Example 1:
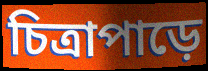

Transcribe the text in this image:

চিত্রাপাড়ে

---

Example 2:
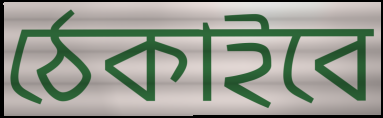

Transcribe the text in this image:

ঠেকাইবে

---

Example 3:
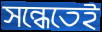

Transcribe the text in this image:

সন্ধেতেই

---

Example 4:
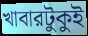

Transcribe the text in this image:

খাবারটুকুই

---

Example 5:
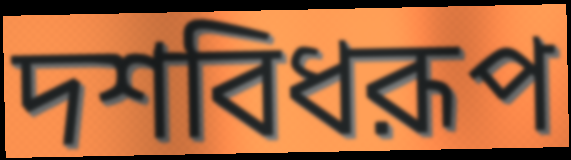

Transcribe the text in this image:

দশবিধরূপ